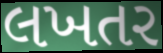
લખતર